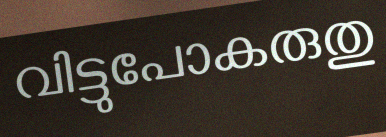
വിട്ടുപോകരുതു